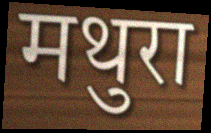
मथुरा